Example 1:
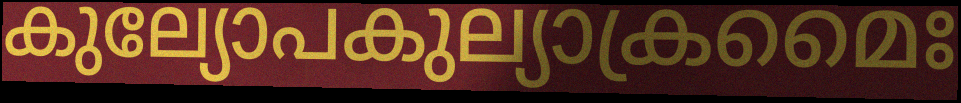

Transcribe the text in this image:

കുല്യോപകുല്യാക്രമൈഃ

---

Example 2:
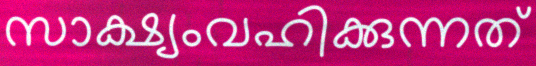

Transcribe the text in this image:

സാക്ഷ്യംവഹിക്കുന്നത്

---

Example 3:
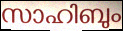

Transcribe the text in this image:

സാഹിബും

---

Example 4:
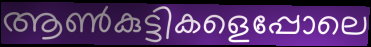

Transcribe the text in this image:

ആൺകുട്ടികളെപ്പോലെ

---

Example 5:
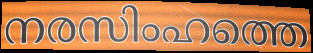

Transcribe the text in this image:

നരസിംഹത്തെ